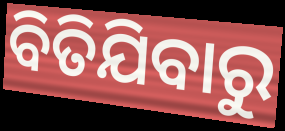
ବିତିଯିବାରୁ